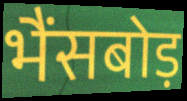
भैंसबोड़